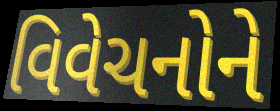
વિવેચનોને